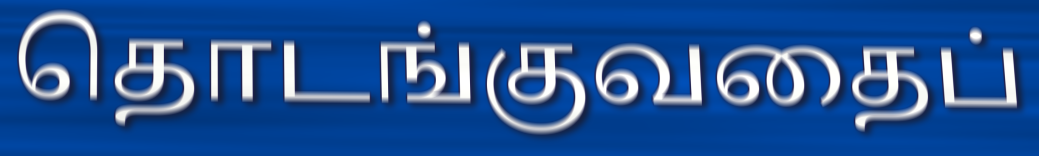
தொடங்குவதைப்